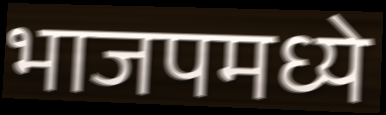
भाजपमध्ये